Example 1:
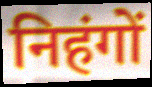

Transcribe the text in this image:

निहंगों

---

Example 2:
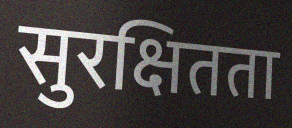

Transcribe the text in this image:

सुरक्षितता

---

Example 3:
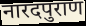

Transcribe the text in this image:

नारदपुराण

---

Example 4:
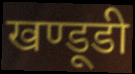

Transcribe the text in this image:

खण्डूडी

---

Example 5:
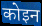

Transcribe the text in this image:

कोइन